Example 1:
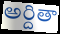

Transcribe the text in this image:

అర్దితా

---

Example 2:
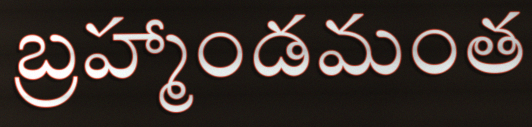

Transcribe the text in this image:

బ్రహ్మాండమంత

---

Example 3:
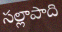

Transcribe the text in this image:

సల్లాపాది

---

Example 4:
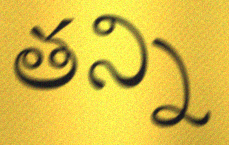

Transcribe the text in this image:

తన్ని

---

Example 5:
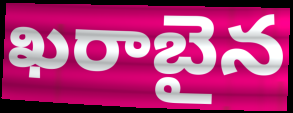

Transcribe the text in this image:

ఖరాబైన